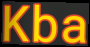
Kba